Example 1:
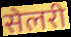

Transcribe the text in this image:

सेलरी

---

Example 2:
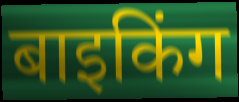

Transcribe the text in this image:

बाइकिंग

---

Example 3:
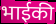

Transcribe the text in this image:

भाईकी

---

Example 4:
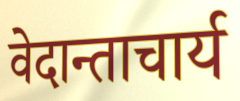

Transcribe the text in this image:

वेदान्ताचार्य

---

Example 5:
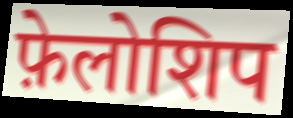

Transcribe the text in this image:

फ़ेलोशिप